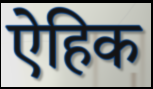
ऐहिक